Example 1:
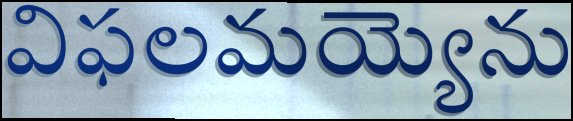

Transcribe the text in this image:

విఫలమయ్యెను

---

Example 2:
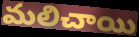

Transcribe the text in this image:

మలిచాయి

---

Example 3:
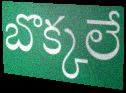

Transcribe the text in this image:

బొక్కలే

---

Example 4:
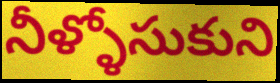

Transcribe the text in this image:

నీళ్ళోసుకుని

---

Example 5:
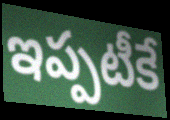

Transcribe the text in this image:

ఇప్పటీకే